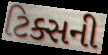
ટિક્સની